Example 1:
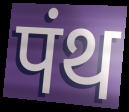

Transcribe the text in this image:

पंथ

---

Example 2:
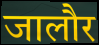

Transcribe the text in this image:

जालौर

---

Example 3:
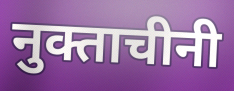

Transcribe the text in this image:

नुक्ताचीनी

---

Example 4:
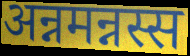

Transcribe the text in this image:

अन्नमन्नस्स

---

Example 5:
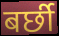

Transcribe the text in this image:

बर्छी